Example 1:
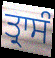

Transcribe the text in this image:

ਤ੍ਰਾਸੰ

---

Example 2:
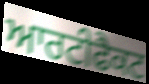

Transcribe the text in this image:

ਆਰਟੀਫੈਕਟ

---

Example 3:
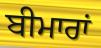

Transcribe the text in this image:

ਬੀਮਾਰਾਂ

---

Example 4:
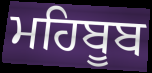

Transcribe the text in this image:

ਮਹਿਬੂਬ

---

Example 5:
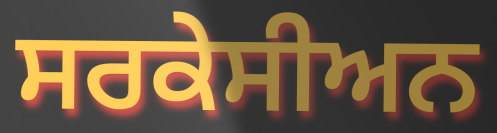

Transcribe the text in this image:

ਸਰਕੇਸੀਅਨ